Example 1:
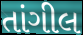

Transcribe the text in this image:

તાંગીલ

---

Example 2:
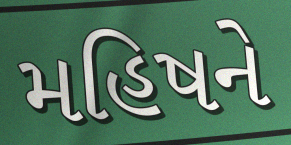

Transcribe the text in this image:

મહિષને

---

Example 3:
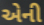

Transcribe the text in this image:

એની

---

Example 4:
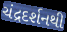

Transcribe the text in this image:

ચંદ્રદર્શનથી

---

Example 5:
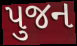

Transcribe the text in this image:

પુજન